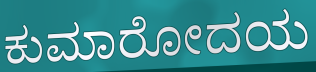
ಕುಮಾರೋದಯ